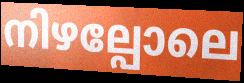
നിഴല്പോലെ